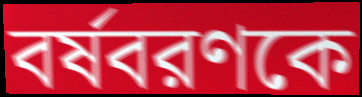
বর্ষবরণকে